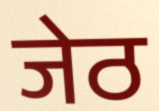
जेठ